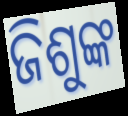
ଜିଶୁଙ୍କ